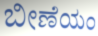
ಬೀಣೆಯಂ